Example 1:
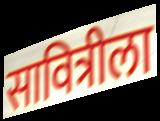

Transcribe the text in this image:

सावित्रीला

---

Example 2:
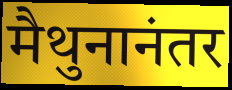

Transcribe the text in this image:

मैथुनानंतर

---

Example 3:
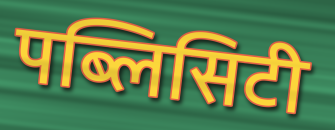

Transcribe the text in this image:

पब्लिसिटी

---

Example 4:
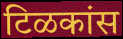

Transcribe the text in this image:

टिळकांस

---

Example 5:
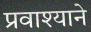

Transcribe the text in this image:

प्रवाश्याने